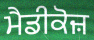
ਮੈਡੀਕੋਜ਼